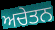
ਅਚੇਤਨ